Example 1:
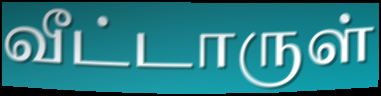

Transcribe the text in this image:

வீட்டாருள்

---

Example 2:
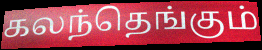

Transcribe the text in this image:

கலந்தெங்கும்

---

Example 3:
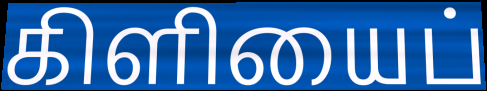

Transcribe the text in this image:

கிளியைப்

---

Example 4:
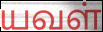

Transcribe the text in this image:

யவள்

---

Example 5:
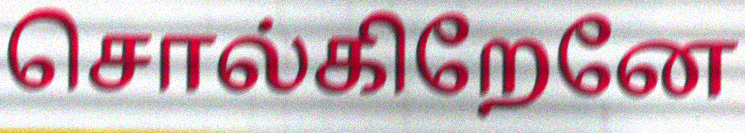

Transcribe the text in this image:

சொல்கிறேனே